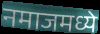
नमाजमध्ये